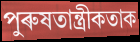
পুৰুষতান্ত্ৰীকতাক